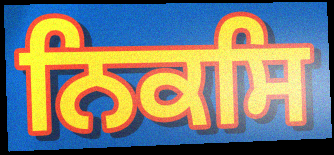
ਨਿਕਸਿ